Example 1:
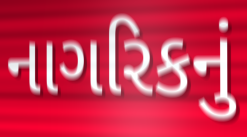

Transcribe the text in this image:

નાગરિકનું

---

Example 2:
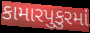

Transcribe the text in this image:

કામારપુકુરમાં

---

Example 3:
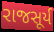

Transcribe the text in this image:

રાજસૂર્ય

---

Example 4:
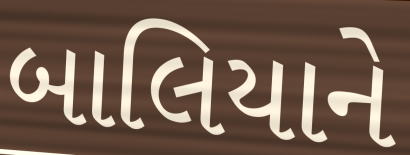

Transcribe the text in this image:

બાલિયાને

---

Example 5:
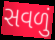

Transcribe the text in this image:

સવળું